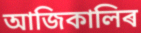
আজিকালিৰ